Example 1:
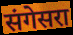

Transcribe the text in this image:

संगेसरा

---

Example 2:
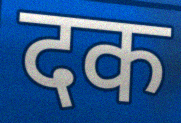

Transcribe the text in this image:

दक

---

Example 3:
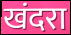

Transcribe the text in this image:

खंदरा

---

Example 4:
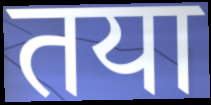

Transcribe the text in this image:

तया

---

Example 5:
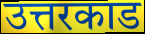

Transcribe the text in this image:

उत्तरकाड